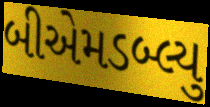
બીએમડબ્લ્યુ